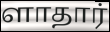
ளாதார்